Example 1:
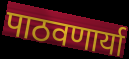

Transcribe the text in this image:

पाठवणार्या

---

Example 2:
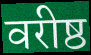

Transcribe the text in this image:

वरीष्ठ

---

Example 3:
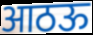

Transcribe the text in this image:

आठऊ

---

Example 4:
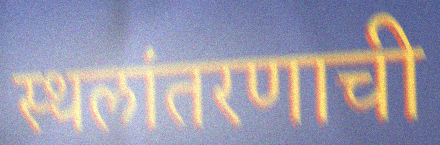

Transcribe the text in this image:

स्थलांतरणाची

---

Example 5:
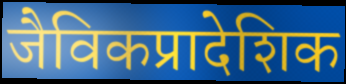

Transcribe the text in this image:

जैविकप्रादेशिक